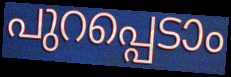
പുറപ്പെടാം